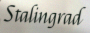
Stalingrad